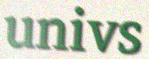
univs